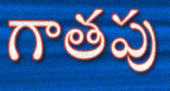
గాతపు